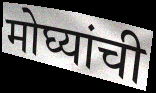
मोघ्यांची